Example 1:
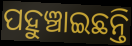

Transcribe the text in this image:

ପହୁଞ୍ଚାଇଛନ୍ତି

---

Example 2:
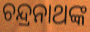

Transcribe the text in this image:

ଚନ୍ଦ୍ରନାଥଙ୍କ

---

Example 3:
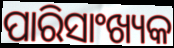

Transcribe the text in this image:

ପାରିସାଂଖ୍ୟକ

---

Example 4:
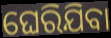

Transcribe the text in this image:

ଘେରିଯିବା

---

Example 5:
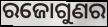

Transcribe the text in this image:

ରଜୋଗୁଣର